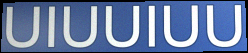
UIUUIUU